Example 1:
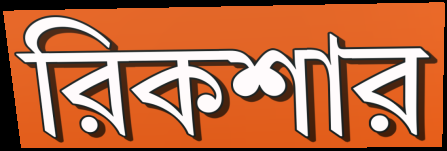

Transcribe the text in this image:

রিকশার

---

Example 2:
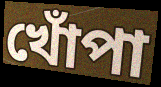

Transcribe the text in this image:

খোঁপা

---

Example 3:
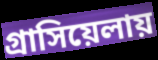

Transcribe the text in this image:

গ্রাসিয়েলায়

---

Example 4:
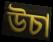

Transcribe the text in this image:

উচা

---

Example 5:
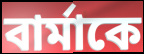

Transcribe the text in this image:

বার্মাকে